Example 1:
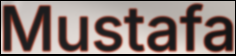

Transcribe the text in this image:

Mustafa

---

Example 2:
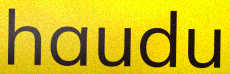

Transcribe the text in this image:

haudu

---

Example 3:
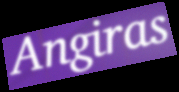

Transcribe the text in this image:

Angiras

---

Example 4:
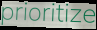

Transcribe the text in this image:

prioritize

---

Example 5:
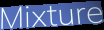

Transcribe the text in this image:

Mixture